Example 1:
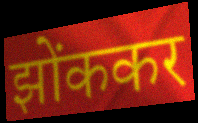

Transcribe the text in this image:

झोंककर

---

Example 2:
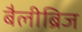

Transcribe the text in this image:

बैलीब्रिज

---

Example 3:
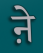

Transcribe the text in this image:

ऩे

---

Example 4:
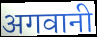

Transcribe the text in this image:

अगवानी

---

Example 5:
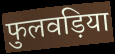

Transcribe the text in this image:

फुलवड़िया